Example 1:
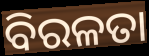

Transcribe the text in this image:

ବିରଳତା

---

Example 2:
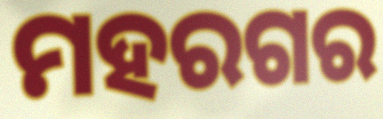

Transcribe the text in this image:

ମହରଗର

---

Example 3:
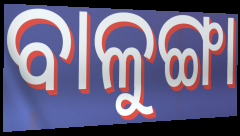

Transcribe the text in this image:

ବାଳୁଙ୍ଗା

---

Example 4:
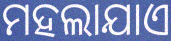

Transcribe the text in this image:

ମହଲାଯାଏ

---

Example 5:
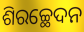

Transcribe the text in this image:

ଶିରଚ୍ଛେଦନ